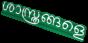
ശാസ്ത്രങ്ങളെ